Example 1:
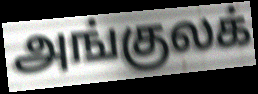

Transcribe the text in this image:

அங்குலக்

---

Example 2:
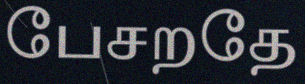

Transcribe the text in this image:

பேசறதே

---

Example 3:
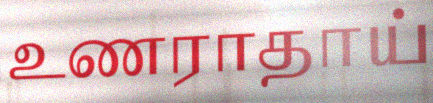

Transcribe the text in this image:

உணராதாய்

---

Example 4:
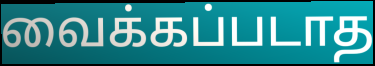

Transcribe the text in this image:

வைக்கப்படாத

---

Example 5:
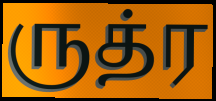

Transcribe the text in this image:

ருத்ர